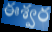
ఈశ్వర